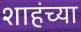
शाहंच्या